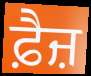
ਫ਼ੈਜ਼